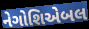
નેગોશિએબલ